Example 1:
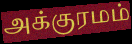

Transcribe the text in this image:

அக்குரமம்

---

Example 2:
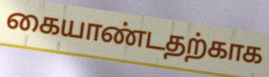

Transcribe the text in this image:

கையாண்டதற்காக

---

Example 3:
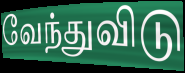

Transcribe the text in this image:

வேந்துவிடு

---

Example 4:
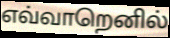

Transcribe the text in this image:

எவ்வாறெனில்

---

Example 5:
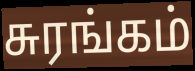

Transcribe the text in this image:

சுரங்கம்